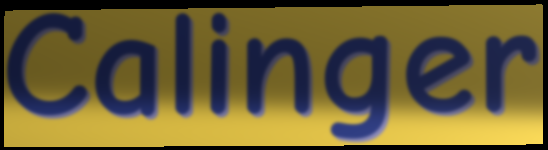
Calinger